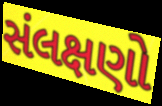
સંલક્ષણો